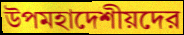
উপমহাদেশীয়দের